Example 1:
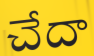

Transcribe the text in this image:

చేదా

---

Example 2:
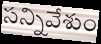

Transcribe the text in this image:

సన్నివేశుం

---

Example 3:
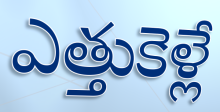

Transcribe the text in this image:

ఎత్తుకెళ్లే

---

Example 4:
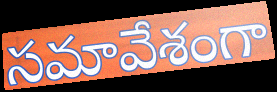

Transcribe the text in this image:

సమావేశంగా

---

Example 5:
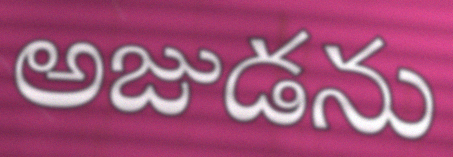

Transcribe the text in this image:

అజుడను